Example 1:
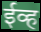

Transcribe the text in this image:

ईव्ह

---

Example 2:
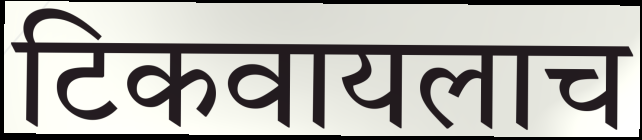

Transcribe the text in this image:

टिकवायलाच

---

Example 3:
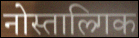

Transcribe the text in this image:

नोस्ताल्गिक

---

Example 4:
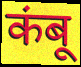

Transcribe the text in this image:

कंबू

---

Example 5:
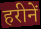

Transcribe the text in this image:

हरीनें